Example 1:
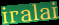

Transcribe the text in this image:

iralai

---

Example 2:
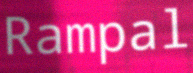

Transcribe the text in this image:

Rampal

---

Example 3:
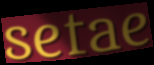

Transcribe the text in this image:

setae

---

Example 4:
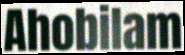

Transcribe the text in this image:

Ahobilam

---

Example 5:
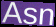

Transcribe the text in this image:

Asn